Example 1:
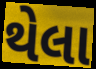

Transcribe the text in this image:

થેલા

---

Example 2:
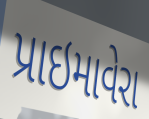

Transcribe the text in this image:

પ્રાઇમાવેરા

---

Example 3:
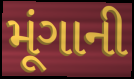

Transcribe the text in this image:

મૂંગાની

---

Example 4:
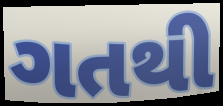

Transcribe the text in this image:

ગતથી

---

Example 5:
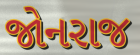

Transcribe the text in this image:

જોનરાજ